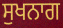
ਸੁਖਨਾਗ